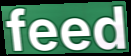
feed